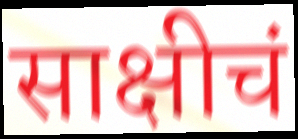
साक्षीचं